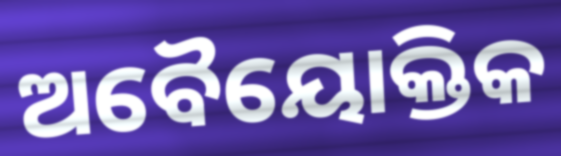
ଅବୈୟୋକ୍ତିକ